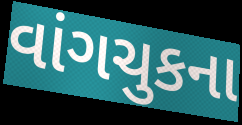
વાંગચુકના